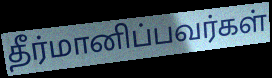
தீர்மானிப்பவர்கள்